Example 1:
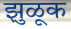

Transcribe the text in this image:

झुळूक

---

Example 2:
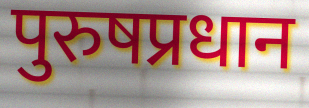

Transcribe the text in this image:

पुरुषप्रधान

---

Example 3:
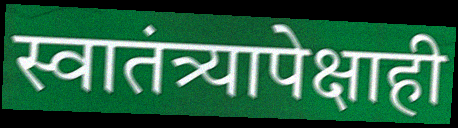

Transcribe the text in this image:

स्वातंत्र्यापेक्षाही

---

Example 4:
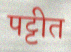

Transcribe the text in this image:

पट्टीत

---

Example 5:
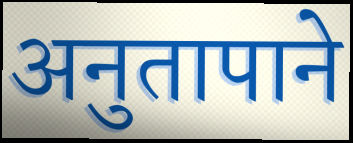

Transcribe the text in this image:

अनुतापाने